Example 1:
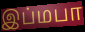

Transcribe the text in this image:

இப்மபா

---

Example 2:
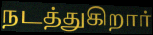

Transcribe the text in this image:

நடத்துகிறார்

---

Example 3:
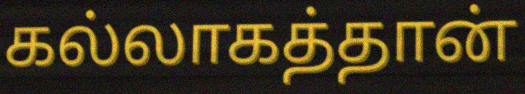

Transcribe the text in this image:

கல்லாகத்தான்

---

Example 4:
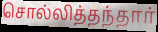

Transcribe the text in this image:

சொல்லித்தந்தார்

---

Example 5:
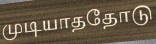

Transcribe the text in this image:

முடியாததோடு